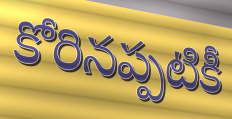
కోరినప్పటికీ